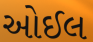
ઓઈલ